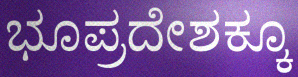
ಭೂಪ್ರದೇಶಕ್ಕೂ